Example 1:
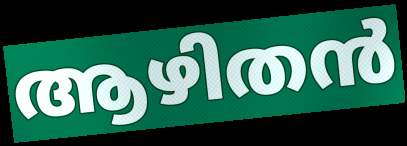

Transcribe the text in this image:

ആഴിതൻ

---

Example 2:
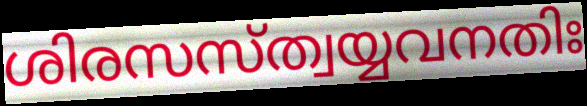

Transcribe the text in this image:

ശിരസസ്ത്വയ്യവനതിഃ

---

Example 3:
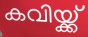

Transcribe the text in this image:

കവിയ്ക്ക്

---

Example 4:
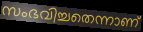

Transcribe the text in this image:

സംഭവിച്ചതെന്നാണ്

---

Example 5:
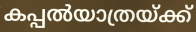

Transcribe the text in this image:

കപ്പൽയാത്രയ്ക്ക്